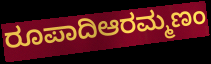
ರೂಪಾದಿಆರಮ್ಮಣಂ